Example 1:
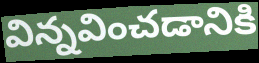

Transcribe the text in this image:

విన్నవించడానికి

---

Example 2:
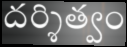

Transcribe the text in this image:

దర్శిత్వం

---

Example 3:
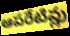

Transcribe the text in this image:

ఆపరేటివ్లు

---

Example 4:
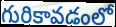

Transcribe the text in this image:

గురికావడంలో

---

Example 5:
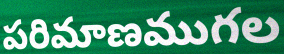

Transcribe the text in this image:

పరిమాణముగల